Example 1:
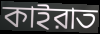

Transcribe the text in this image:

কাইরাত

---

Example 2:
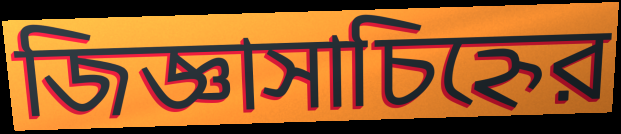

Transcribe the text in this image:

জিজ্ঞাসাচিহ্নের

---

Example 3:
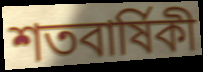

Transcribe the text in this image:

শতবার্ষিকী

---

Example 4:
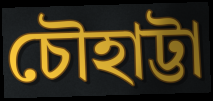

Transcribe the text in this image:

চৌহাট্টা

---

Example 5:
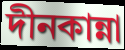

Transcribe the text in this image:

দীনকান্না